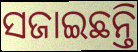
ସଜାଇଛନ୍ତି